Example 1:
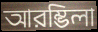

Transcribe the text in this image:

আরম্ভিলা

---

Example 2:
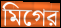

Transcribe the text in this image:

মিগের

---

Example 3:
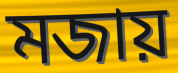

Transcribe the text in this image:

মজায়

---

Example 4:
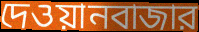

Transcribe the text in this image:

দেওয়ানবাজার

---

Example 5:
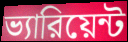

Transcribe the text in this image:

ভ্যারিয়েন্ট